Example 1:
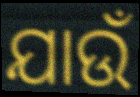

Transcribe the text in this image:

ଯାଉଁ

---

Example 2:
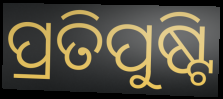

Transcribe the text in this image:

ପ୍ରତିପୁଷ୍ଟି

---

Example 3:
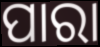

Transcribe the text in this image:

ପାରା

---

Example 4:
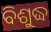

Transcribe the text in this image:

ବିଶୁଦ୍ଧ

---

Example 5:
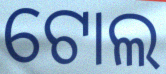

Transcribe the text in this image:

ଟୋଲ